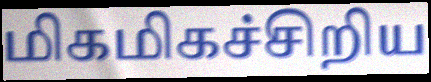
மிகமிகச்சிறிய